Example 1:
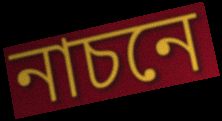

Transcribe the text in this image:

নাচনে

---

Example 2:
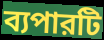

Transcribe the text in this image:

ব্যপারটি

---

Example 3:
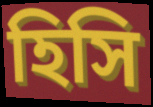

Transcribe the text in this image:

হিসি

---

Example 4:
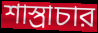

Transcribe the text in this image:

শাস্ত্রাচার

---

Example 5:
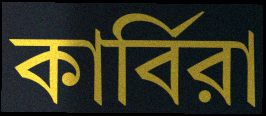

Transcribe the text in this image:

কার্বিরা